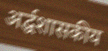
अर्द्धशासकीय